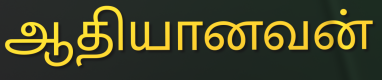
ஆதியானவன்